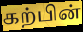
கற்பின்